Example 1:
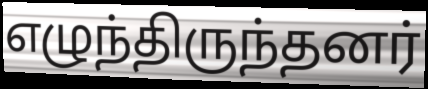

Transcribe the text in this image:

எழுந்திருந்தனர்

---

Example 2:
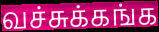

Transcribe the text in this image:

வச்சுக்கங்க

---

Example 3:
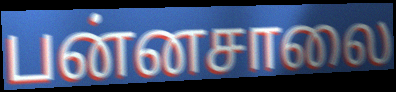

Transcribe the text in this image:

பன்னசாலை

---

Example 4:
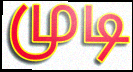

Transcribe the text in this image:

முடி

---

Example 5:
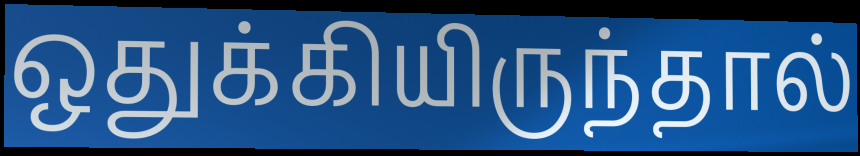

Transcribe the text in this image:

ஒதுக்கியிருந்தால்